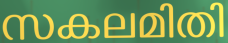
സകലമിതി